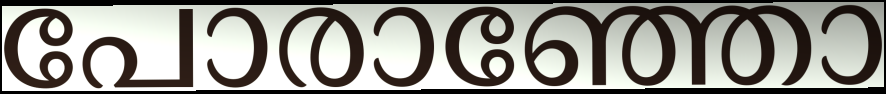
പോരാഞ്ഞോ